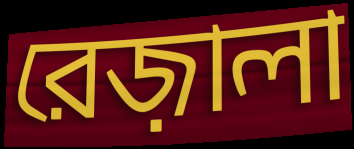
রেজ়ালা